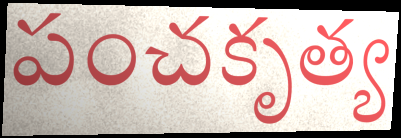
పంచకృత్య